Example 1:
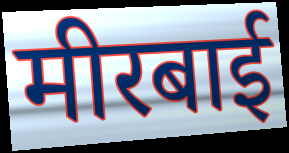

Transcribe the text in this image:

मीरबाई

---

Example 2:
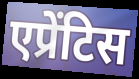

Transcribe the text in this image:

एप्रेंटिस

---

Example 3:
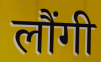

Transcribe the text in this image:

लौंगी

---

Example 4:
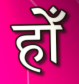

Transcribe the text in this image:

होँ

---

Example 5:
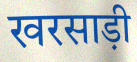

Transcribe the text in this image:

खरसाड़ी